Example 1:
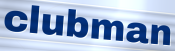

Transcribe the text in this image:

clubman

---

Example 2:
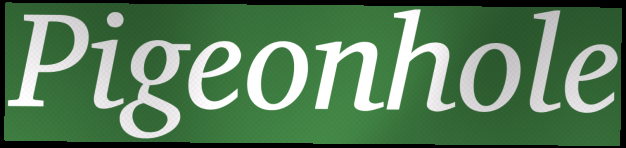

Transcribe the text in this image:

Pigeonhole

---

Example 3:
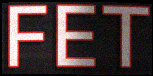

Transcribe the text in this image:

FET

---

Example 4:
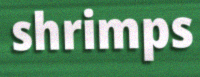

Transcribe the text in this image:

shrimps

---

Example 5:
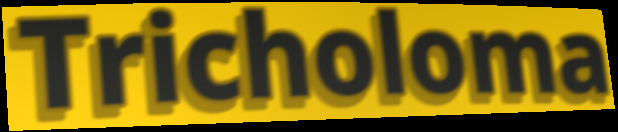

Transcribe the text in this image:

Tricholoma